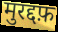
मुरद्दफ़